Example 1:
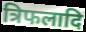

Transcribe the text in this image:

त्रिफलादि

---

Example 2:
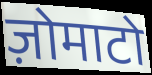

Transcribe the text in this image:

ज़ोमाटो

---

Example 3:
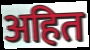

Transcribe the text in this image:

अहित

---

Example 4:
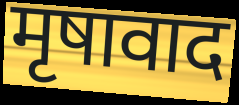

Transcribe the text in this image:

मृषावाद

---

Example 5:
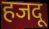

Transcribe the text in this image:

हजदू